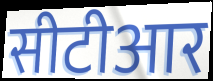
सीटीआर